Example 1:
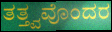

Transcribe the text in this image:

ತತ್ತ್ವವೊಂದರ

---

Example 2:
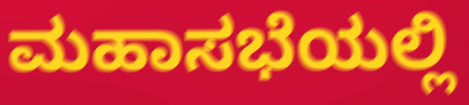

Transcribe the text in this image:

ಮಹಾಸಭೆಯಲ್ಲಿ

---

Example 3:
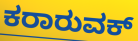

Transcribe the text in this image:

ಕರಾರುವಕ್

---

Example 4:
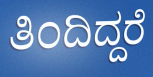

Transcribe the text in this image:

ತಿಂದಿದ್ದರೆ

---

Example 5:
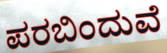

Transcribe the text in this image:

ಪರಬಿಂದುವೆ